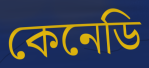
কেনেডি